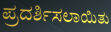
ಪ್ರದರ್ಶಿಸಲಾಯಿತು